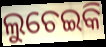
ଲୁଚେଇକି